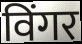
विंगर